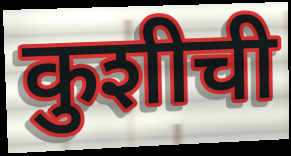
कुशीची